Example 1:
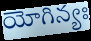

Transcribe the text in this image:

యోగిన్యః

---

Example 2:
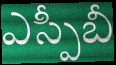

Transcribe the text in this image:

ఎస్పీబీ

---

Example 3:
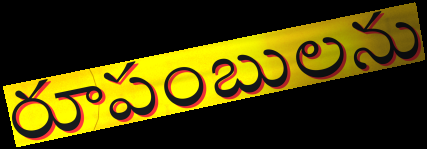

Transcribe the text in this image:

రూపంబులను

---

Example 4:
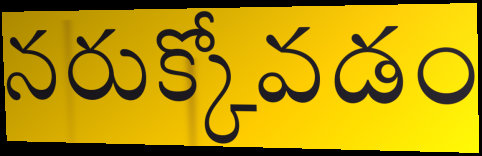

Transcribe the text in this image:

నరుక్కోవడం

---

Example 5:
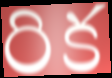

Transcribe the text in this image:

రిక